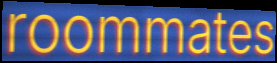
roommates